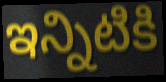
ఇన్నిటికి